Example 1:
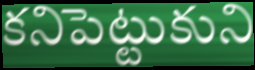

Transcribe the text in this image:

కనిపెట్టుకుని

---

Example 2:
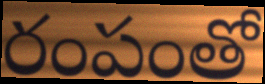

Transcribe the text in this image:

రంపంతో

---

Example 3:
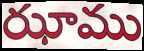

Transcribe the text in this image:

ఝాము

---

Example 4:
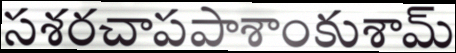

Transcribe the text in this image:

సశరచాపపాశాంకుశామ్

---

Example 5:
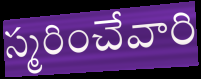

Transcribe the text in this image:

స్మరించేవారి